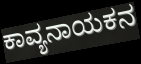
ಕಾವ್ಯನಾಯಕನ